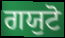
ਗਯੁਟੋ